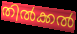
തിൽക്കൽ